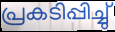
പ്രകടിപ്പിച്ചു്